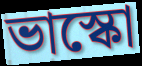
ভাস্কো